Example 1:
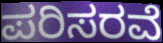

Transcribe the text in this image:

ಪರಿಸರವೆ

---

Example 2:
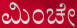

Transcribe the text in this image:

ಮಿಂಚೇ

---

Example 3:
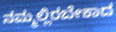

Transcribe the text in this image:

ನಮ್ಮಲ್ಲಿರಬೇಕಾದ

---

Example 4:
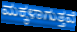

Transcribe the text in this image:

ಮಕ್ಕಳಾಗುತ್ತವೆ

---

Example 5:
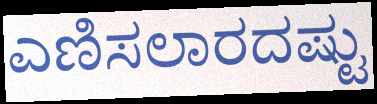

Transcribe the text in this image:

ಎಣಿಸಲಾರದಷ್ಟು